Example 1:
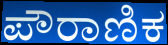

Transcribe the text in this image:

ಪೌರಾಣಿಕ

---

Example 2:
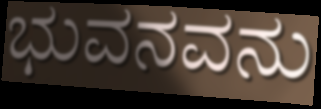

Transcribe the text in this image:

ಭುವನವನು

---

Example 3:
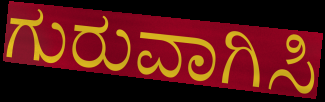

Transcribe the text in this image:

ಗುರುವಾಗಿಸಿ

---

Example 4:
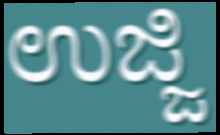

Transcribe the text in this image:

ಉಜ್ಜಿ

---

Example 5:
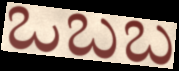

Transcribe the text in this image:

ಒಬಬ